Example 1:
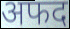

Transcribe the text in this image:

अफद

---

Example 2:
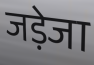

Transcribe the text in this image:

जड़ेजा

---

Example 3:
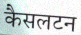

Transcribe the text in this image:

कैसलटन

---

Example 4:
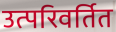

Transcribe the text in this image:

उत्परिवर्तित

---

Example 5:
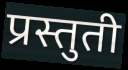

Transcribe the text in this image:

प्रस्तुती